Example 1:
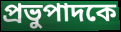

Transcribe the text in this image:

প্রভুপাদকে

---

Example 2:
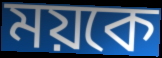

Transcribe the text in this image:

ময়কে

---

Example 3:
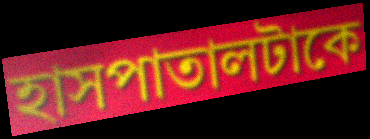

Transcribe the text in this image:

হাসপাতালটাকে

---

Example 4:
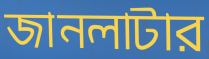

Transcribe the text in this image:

জানলাটার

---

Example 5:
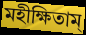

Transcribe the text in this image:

মহীক্ষিতাম্